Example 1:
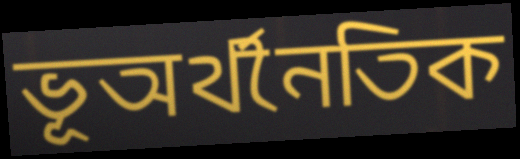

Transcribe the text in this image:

ভূঅর্থনৈতিক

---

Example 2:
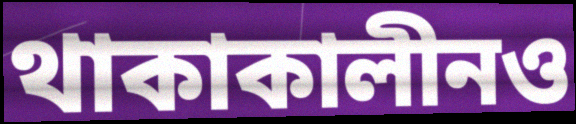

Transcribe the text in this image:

থাকাকালীনও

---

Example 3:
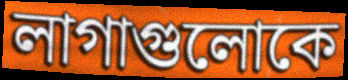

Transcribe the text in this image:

লাগাগুলোকে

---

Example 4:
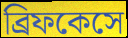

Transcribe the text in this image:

ব্রিফকেসে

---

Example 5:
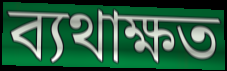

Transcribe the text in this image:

ব্যথাক্ষত